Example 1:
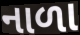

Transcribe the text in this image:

નાળા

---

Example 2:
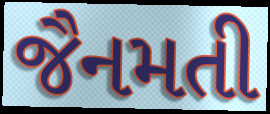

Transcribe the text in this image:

જૈનમતી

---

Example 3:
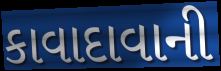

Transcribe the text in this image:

કાવાદાવાની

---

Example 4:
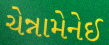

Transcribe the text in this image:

ચેન્નામેનેઈ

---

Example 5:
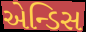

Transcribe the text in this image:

એન્ડિસ